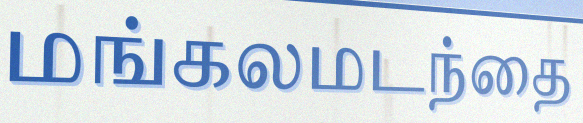
மங்கலமடந்தை